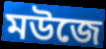
মউজে